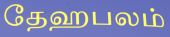
தேஹபலம்